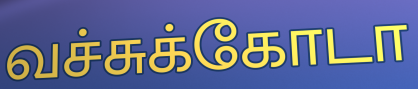
வச்சுக்கோடா